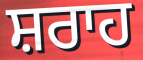
ਸ਼ਰਾਹ